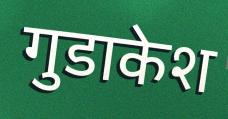
गुडाकेश